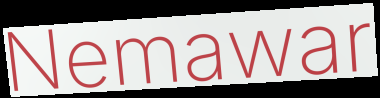
Nemawar